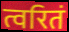
त्वरितं